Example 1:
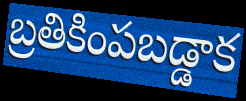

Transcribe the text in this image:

బ్రతికింపబడ్డాక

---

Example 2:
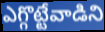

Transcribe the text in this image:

ఎగ్గొట్టేవాడిని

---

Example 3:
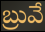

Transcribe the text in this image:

బ్రువే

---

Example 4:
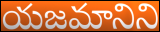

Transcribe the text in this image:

యజమానిని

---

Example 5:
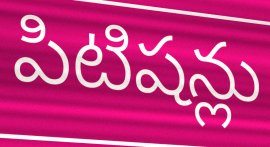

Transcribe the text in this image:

పిటిషన్లు